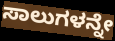
ಸಾಲುಗಳನ್ನೇ